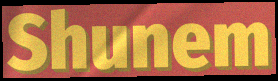
Shunem